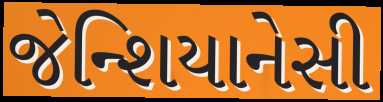
જેન્શિયાનેસી